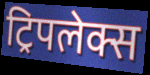
ट्रिपलेक्स